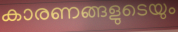
കാരണങ്ങളുടെയും